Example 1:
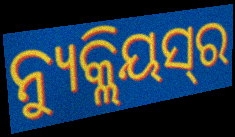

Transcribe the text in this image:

ନ୍ୟୁକ୍ଲିୟସ୍‌ର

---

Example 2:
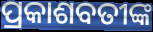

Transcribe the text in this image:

ପ୍ରକାଶବତୀଙ୍କ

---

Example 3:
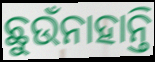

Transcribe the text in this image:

ଛୁଉଁନାହାନ୍ତି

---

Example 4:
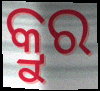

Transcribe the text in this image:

କ୍ରୁର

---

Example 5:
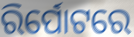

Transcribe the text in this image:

ରିର୍ପୋଟରେ